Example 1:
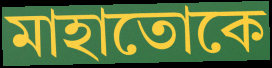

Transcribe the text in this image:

মাহাতোকে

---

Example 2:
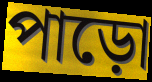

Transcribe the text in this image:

পাড়ো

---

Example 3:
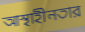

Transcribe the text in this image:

আস্থাহীনতার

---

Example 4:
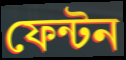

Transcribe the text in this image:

ফেন্টন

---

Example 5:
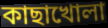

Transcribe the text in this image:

কাছাখোলা